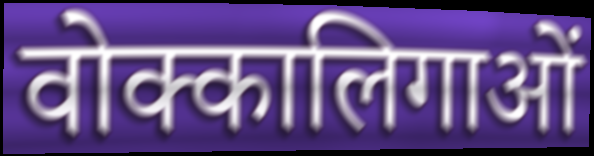
वोक्कालिगाओं